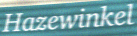
Hazewinkel